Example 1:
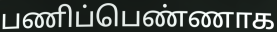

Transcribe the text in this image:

பணிப்பெண்ணாக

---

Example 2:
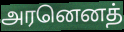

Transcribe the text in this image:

அரனெனத்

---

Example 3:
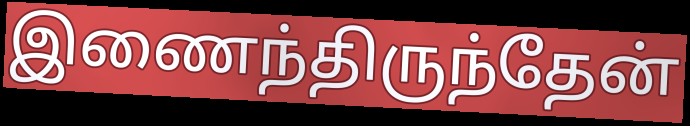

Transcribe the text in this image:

இணைந்திருந்தேன்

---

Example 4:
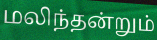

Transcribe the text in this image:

மலிந்தன்றும்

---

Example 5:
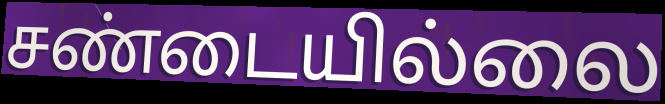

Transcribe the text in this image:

சண்டையில்லை